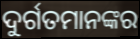
ଦୁର୍ଗତମାନଙ୍କର